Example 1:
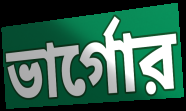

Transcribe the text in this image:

ভার্গোর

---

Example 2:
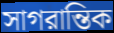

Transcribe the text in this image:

সাগরান্তিক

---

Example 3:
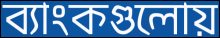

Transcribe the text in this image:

ব্যাংকগুলোয়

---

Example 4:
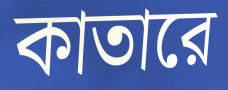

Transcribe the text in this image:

কাতারে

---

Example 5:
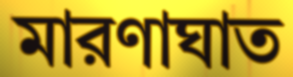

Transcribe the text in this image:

মারণাঘাত